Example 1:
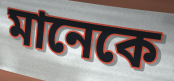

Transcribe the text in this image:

মানেকে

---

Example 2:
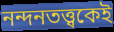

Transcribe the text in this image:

নন্দনতত্ত্বকেই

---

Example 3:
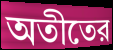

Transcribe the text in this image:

অতীতের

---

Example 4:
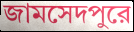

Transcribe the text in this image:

জামসেদপুরে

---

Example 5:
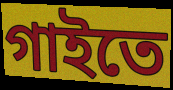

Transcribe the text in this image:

গাইতে